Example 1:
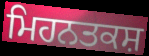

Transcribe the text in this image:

ਮਿਹਨਤਕਸ਼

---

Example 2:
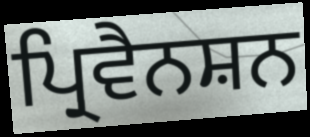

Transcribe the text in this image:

ਪ੍ਰਿਵੈਨਸ਼ਨ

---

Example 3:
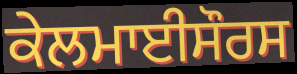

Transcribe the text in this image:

ਕੇਲਮਾਈਸੌਰਸ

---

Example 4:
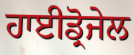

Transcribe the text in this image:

ਹਾਈਡ੍ਰੋਜੇਲ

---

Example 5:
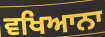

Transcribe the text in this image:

ਵਖਿਆਨਾ